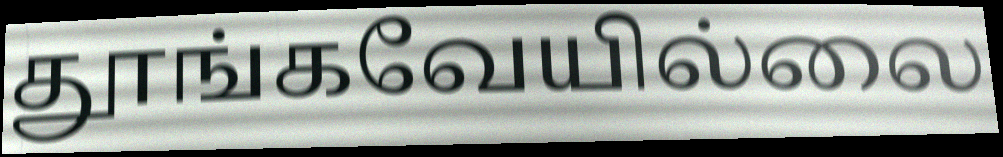
தூங்கவேயில்லை